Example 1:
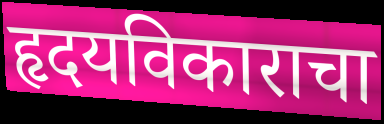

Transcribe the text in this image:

हृदयविकाराचा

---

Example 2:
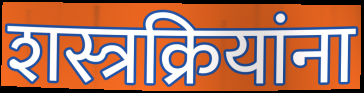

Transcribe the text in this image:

शस्त्रक्रियांना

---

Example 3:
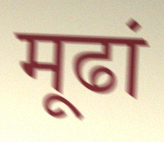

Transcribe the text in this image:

मूढां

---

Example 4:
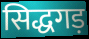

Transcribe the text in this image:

सिद्धगड़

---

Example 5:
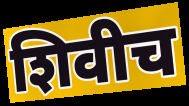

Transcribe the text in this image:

शिवीच